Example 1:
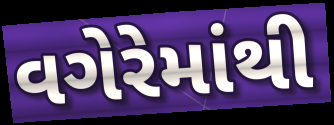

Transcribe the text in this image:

વગેરેમાંથી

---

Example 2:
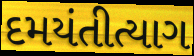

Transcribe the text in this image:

દમયંતીત્યાગ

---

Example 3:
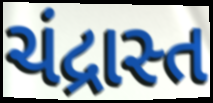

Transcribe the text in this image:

ચંદ્રાસ્ત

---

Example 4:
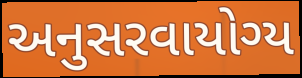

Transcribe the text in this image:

અનુસરવાયોગ્ય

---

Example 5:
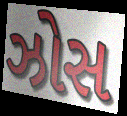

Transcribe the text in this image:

ઝોસ